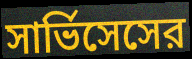
সার্ভিসেসের